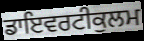
ਡਾਇਵਰਟੀਕੁਲਮ